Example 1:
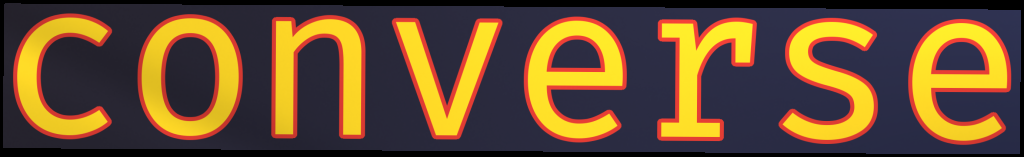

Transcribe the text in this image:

converse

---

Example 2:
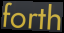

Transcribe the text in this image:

forth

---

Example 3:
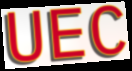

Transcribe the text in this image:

UEC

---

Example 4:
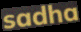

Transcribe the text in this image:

sadha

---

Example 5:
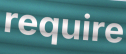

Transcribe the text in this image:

require